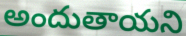
అందుతాయని